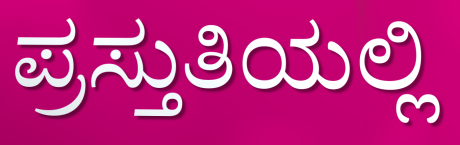
ಪ್ರಸ್ತುತಿಯಲ್ಲಿ